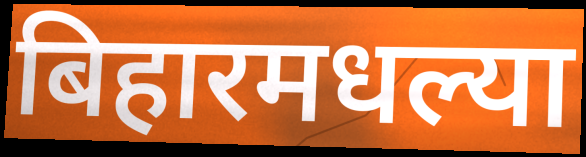
बिहारमधल्या